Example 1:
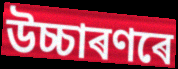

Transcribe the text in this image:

উচ্চাৰণৰে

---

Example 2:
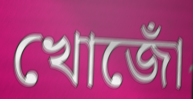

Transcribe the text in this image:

খোজোঁ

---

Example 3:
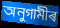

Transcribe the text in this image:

অনুগামীৰ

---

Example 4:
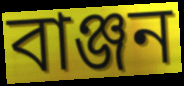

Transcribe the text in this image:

বাঞ্জন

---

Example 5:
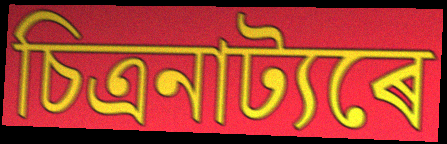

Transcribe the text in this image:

চিত্ৰনাট্যৰে